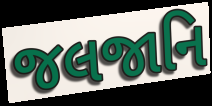
જલજાનિ